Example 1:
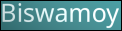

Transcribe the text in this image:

Biswamoy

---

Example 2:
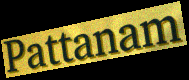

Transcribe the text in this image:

Pattanam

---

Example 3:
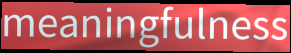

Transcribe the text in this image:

meaningfulness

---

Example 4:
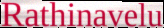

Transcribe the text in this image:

Rathinavelu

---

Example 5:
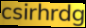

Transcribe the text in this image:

csirhrdg